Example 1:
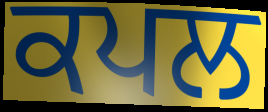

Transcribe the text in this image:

ਕਪਲ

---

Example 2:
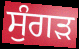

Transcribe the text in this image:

ਸੁੰਗੜ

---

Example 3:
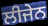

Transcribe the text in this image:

ਲੀਜੇਨ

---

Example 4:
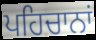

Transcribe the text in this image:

ਪਹਿਚਾਨਾਂ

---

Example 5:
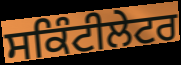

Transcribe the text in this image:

ਸਕਿੰਟੀਲੇਟਰ